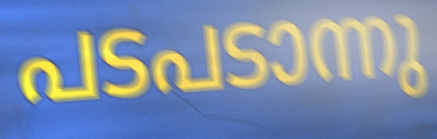
പടപടാന്നു